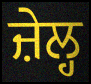
ਜ਼ੇਲ੍ਹ